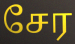
சேர